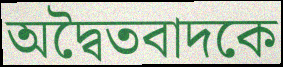
অদ্বৈতবাদকে